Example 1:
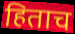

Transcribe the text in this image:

हिताच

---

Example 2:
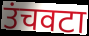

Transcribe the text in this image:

उंचवटा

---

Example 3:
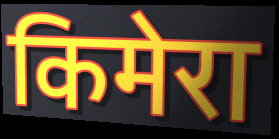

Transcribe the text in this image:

किमेरा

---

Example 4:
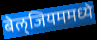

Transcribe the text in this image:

बेल्जियममध्ये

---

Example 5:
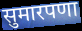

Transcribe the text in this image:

सुमारपणा